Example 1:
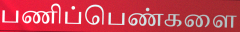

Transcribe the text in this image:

பணிப்பெண்களை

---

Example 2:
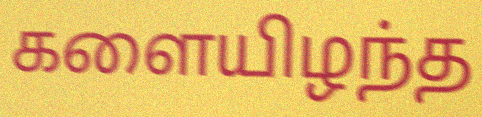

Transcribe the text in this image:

களையிழந்த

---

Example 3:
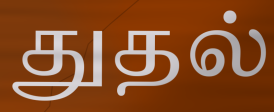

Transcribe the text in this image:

துதல்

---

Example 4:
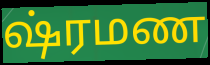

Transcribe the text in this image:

ஷ்ரமண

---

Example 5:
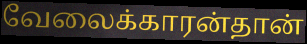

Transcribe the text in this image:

வேலைக்காரன்தான்